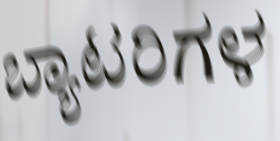
ಬ್ಯಾಟರಿಗಳ